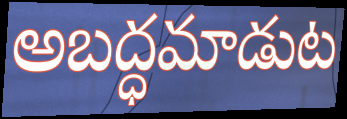
అబద్ధమాడుట